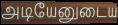
அடியேனுடைய